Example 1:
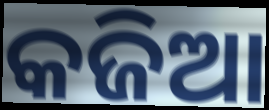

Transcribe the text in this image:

କଜିଆ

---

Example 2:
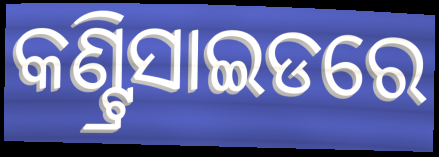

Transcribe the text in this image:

କଣ୍ଟ୍ରିସାଇଡରେ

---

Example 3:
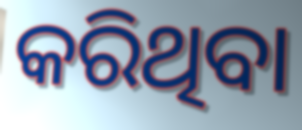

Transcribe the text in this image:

କରିଥିବା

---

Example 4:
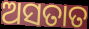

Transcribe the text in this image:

ଅସତାତ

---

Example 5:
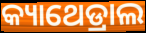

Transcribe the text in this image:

କ୍ୟାଥେଡ୍ରାଲ